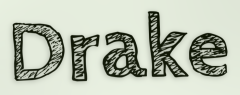
Drake